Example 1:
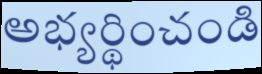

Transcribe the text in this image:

అభ్యర్థించండి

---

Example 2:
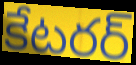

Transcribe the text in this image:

కేటరర్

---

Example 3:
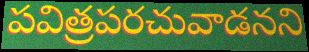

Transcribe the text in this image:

పవిత్రపరచువాడనని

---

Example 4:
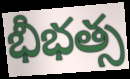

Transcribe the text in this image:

భీభత్స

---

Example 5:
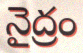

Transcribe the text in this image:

నైద్రం